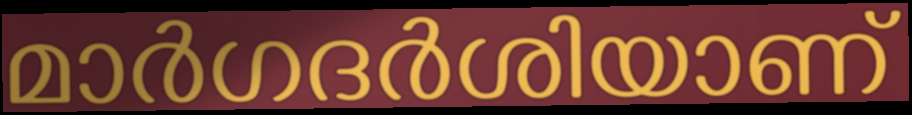
മാർഗദർശിയാണ്